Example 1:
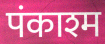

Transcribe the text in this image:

पंकाश्म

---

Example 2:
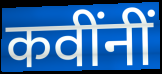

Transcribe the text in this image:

कवींनीं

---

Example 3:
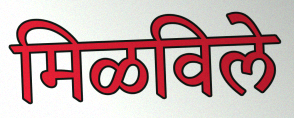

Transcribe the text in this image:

मिळविले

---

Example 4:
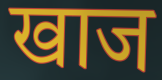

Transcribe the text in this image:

खाज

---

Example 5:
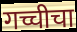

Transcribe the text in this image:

गच्चीचा